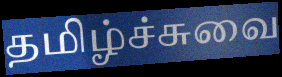
தமிழ்ச்சுவை